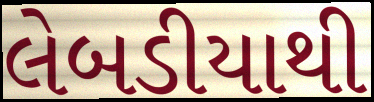
લેબડીયાથી